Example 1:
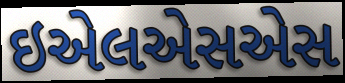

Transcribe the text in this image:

ઇએલએસએસ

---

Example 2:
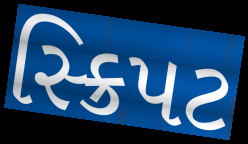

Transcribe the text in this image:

સ્ક્રિપટ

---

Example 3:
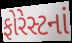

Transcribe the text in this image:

ફોરેસ્ટનાં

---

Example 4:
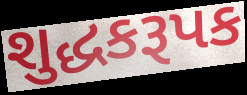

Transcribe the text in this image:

શુદ્ધકરૂપક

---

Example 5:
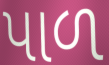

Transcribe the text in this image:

પાળ